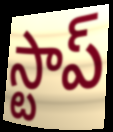
స్టాప్